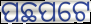
ପଛପଟେ